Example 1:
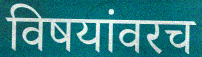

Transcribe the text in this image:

विषयांवरच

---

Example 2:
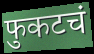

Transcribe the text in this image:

फुकटचं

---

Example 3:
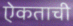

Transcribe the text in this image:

ऐकताची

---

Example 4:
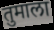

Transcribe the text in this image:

तुमाला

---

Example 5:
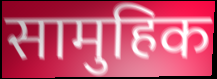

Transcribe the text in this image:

सामुहिक